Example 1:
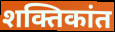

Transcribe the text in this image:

शक्तिकांत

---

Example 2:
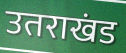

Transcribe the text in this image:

उतराखंड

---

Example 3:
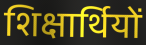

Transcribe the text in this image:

शिक्षार्थियों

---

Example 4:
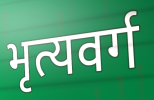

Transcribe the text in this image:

भृत्यवर्ग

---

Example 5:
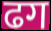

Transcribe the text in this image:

ढग